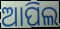
ଆପିଲ